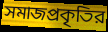
সমাজপ্রকৃতির